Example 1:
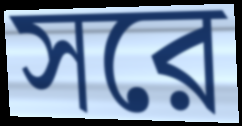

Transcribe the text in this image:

সরে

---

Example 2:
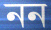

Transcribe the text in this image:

নন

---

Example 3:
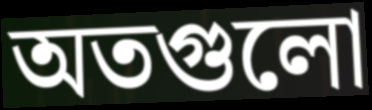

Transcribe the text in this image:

অতগুলো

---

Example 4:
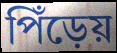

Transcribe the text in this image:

পিঁড়েয়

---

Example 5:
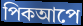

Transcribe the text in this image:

পিকআপে